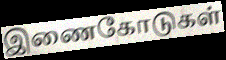
இணைகோடுகள்